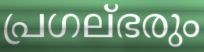
പ്രഗല്ഭരും